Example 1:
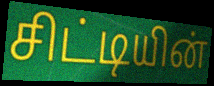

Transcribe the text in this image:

சிட்டியின்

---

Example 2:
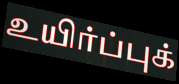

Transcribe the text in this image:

உயிர்ப்புக்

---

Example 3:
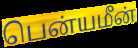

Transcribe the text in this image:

பென்யமீன்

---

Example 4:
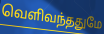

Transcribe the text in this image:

வெளிவந்ததுமே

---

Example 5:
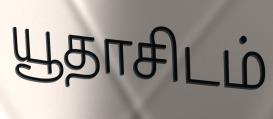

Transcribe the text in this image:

யூதாசிடம்